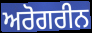
ਅਰੋਗਰੀਨ